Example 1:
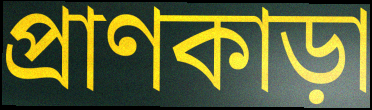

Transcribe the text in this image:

প্রাণকাড়া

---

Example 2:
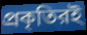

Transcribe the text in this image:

প্রকৃতিরই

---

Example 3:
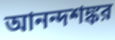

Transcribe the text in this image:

আনন্দশঙ্কর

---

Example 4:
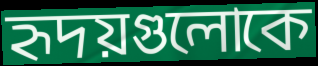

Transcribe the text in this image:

হৃদয়গুলোকে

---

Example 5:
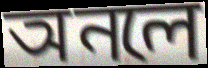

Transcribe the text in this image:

অনলে